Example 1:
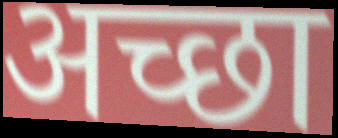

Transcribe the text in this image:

अच्‍छा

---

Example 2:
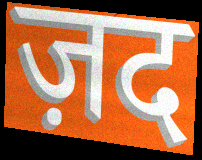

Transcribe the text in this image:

ज़द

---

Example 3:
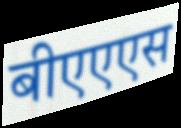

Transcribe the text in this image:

बीएएएस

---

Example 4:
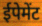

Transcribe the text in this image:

ईपेमेंट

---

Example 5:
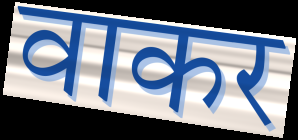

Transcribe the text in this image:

वाकर